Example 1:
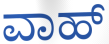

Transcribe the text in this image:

ವಾಹ್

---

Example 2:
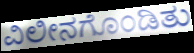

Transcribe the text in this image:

ವಿಲೀನಗೊಂಡಿತು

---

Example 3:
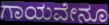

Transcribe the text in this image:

ಗಾಯವೇನೂ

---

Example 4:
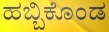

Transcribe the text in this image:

ಹಬ್ಬಿಕೊಂಡ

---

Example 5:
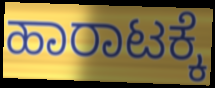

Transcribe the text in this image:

ಹಾರಾಟಕ್ಕೆ